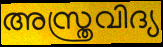
അസ്ത്രവിദ്യ